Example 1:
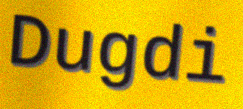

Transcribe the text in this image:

Dugdi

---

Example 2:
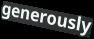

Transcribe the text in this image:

generously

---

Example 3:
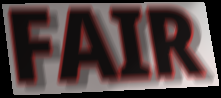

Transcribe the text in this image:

FAIR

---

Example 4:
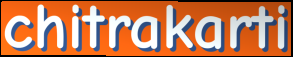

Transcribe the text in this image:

chitrakarti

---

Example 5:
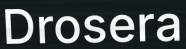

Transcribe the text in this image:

Drosera